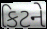
કિટને